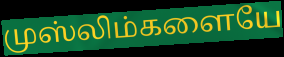
முஸ்லிம்களையே